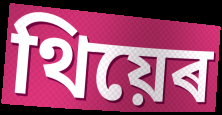
থিয়েৰ